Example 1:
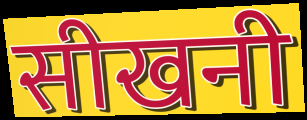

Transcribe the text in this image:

सीखनी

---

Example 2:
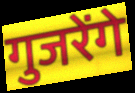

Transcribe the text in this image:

गुजरेंगे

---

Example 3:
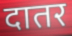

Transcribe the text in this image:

दातर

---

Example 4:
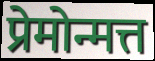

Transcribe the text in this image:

प्रेमोन्मत्त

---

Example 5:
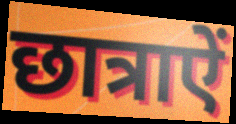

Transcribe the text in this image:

छात्राऐं